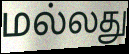
மல்லது